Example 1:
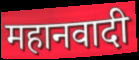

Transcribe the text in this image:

महानवादी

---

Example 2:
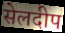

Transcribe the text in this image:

सेलदीप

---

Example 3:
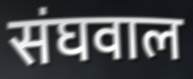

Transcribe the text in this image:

संघवाल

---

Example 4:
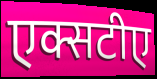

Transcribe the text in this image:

एक्सटीए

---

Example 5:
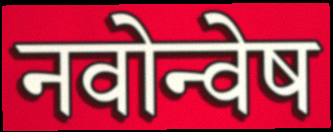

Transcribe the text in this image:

नवोन्वेष